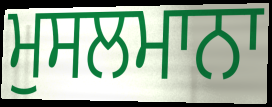
ਮੁਸਲਮਾਨਾ